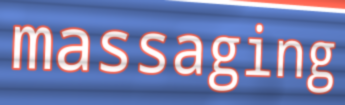
massaging